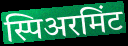
स्पिअरमिंट